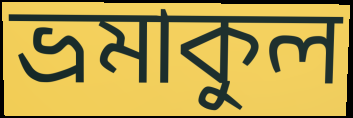
ভ্রমাকুল